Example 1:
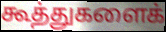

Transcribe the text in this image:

கூத்துகளைக்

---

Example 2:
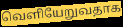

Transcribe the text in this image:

வெளியேறுவதாக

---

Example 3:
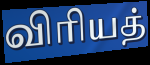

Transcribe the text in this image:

விரியத்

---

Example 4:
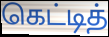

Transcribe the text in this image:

கெட்டித்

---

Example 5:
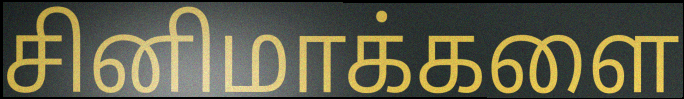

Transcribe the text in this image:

சினிமாக்களை